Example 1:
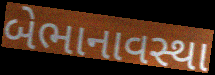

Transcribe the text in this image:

બેભાનાવસ્થા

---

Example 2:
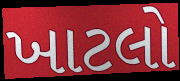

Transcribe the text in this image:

ખાટલો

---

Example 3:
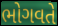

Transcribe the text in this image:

ભોગવતે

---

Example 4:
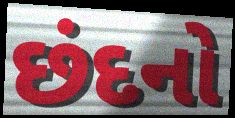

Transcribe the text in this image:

છંદનો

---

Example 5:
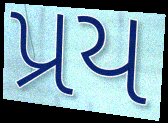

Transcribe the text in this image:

પ્રય